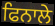
ਫਿਨਾਲੇ